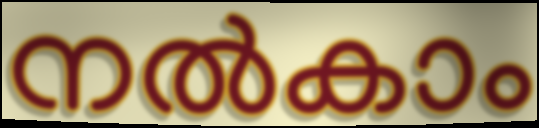
നൽകാം